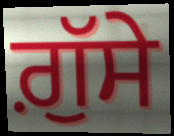
ਗ਼ੁੱਸੇ